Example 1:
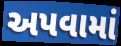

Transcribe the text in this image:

અપવામાં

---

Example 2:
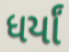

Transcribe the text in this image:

ધર્યાં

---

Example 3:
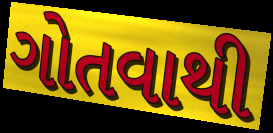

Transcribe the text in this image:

ગોતવાથી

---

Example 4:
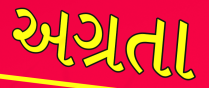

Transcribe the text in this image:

અગ્રતા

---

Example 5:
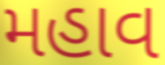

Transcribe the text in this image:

મહાવ